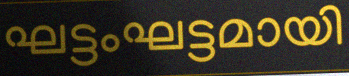
ഘട്ടംഘട്ടമായി